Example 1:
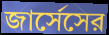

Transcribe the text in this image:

জার্সেসের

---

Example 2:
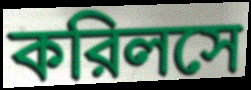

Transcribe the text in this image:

করিলসে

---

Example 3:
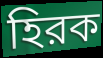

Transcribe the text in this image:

হিরক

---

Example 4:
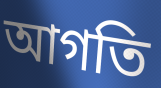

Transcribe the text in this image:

আগতি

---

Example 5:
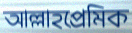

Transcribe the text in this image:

আল্লাহপ্রেমিক